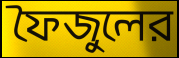
ফৈজুলের